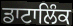
ਡਾਟਾਲਿੰਕ